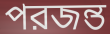
পরজন্ত